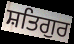
ਸ਼ਤਿਗੁਰ